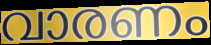
വാരണം